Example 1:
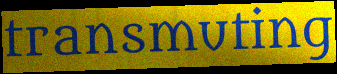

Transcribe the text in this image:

transmuting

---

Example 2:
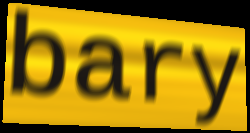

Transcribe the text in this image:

bary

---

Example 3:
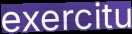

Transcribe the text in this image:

exercitu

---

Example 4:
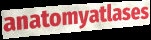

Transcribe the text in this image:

anatomyatlases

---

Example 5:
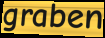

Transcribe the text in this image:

graben